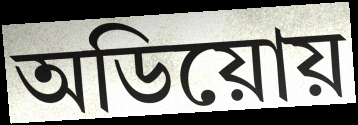
অডিয়োয়